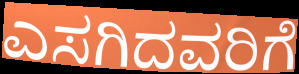
ಎಸಗಿದವರಿಗೆ